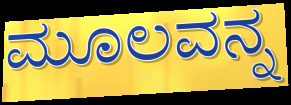
ಮೂಲವನ್ನ